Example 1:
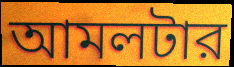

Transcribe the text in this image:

আমলটার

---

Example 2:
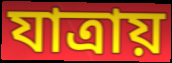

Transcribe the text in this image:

যাত্রায়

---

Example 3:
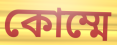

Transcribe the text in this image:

কোম্মে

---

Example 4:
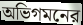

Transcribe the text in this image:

অভিগমনের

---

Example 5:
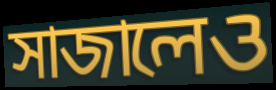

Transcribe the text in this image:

সাজালেও